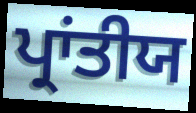
ਪ੍ਰਾਂਤੀਯ